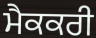
ਮੈਕਕਰੀ